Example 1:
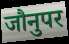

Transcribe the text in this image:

जौनुपर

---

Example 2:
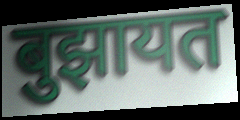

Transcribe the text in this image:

बुझायत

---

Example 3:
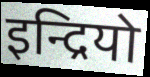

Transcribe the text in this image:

इन्द्रियो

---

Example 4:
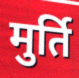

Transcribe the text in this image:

मुर्ति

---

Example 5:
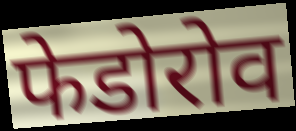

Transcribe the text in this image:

फेडोरोव